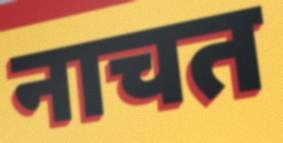
नाचत